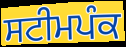
ਸਟੀਮਪੰਕ